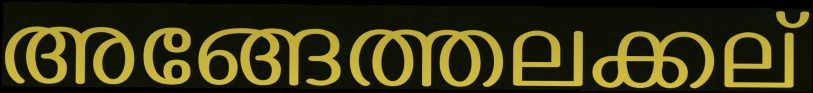
അങ്ങേത്തലക്കല്